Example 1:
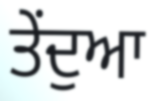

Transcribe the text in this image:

ਤੇਂਦੁਆ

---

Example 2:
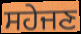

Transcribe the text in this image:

ਸਹੇਜਣ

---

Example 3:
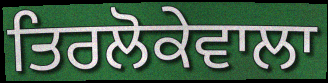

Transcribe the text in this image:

ਤਿਰਲੋਕੇਵਾਲਾ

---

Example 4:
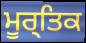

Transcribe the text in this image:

ਮੂਰ੍ਤਿਕ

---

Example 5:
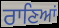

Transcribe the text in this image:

ਰਾਣਿਆਂ